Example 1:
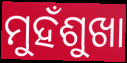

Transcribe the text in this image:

ମୁହଁଶୁଖା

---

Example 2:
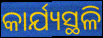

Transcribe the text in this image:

କାର୍ଯ୍ୟସ୍ଥଳି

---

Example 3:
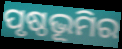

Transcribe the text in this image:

ପୃଷ୍ଠଭୂମିର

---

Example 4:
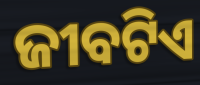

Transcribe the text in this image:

ଜୀବଟିଏ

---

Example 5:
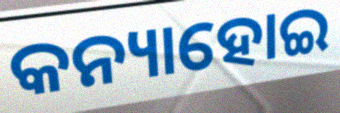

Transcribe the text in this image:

କନ୍ୟାହୋଇ